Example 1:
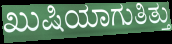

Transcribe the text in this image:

ಖುಷಿಯಾಗುತಿತ್ತು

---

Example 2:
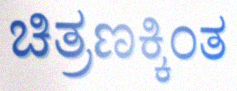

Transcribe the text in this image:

ಚಿತ್ರಣಕ್ಕಿಂತ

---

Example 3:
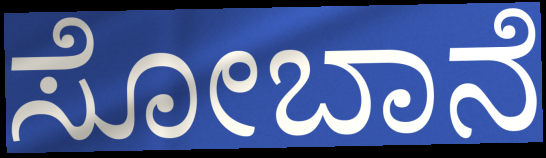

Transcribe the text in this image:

ಸೋಬಾನೆ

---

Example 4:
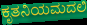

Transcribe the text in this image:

ಕೃತನಿಯಮದಲಿ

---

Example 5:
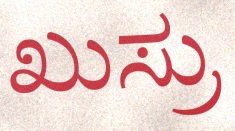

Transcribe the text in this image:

ಖುಸ್ರು